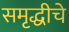
समृद्धीचे